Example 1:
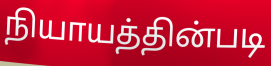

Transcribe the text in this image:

நியாயத்தின்படி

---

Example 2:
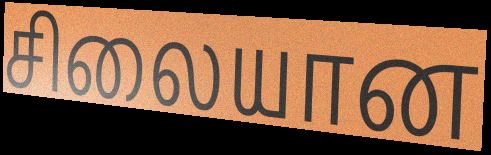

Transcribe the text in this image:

சிலையான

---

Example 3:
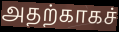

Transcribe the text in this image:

அதற்காகச்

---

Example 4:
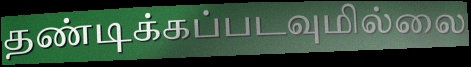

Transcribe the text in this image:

தண்டிக்கப்படவுமில்லை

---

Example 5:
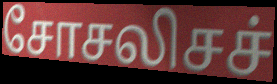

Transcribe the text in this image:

சோசலிசச்